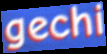
gechi